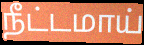
நீட்டமாய்